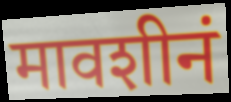
मावशीनं